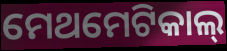
ମେଥମେଟିକାଲ୍